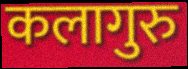
कलागुरु